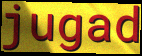
jugad